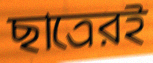
ছাত্রেরই